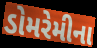
ડોમરેમીના